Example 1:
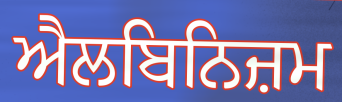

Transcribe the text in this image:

ਐਲਬਿਨਿਜ਼ਮ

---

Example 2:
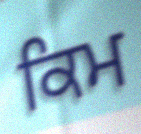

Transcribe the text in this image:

ਕਿਮ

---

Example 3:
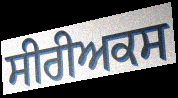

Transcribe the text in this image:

ਸੀਰੀਅਕਸ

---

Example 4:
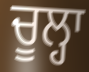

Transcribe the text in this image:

ਚੂਲ੍ਹਾ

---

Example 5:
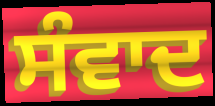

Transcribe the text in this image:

ਸੰਵਾਦ